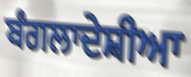
ਬੰਗਲਾਦੇਸ਼ੀਆ